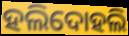
ହଲିଦୋହଲି